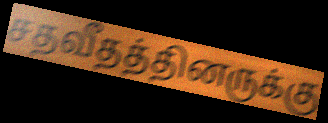
சதவீதத்தினருக்கு